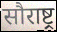
सौराष्ट्र